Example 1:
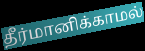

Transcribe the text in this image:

தீர்மானிக்காமல்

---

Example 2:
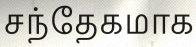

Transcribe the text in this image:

சந்தேகமாக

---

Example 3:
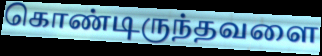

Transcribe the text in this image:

கொண்டிருந்தவளை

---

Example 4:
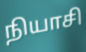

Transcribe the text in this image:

நியாசி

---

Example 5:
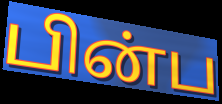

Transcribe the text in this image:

பின்ப